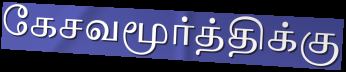
கேசவமூர்த்திக்கு